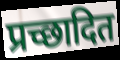
प्रच्छादित